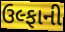
ઉલ્ફાની